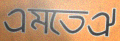
এমতেঐ